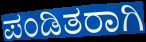
ಪಂಡಿತರಾಗಿ